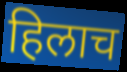
हिलाच